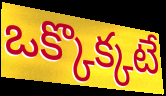
ఒక్కొక్కటే